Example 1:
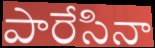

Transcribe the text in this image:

పారేసినా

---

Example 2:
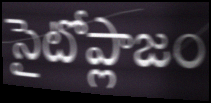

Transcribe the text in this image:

సైటోప్లాజం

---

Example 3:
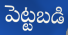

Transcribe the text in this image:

పెట్టబడి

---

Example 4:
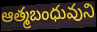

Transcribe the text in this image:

ఆత్మబంధువుని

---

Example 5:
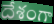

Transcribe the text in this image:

దేశంగా